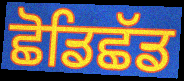
ਛੋਡਿਛੱਡ